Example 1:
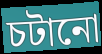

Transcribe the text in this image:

চটানো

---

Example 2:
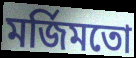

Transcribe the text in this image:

মর্জিমতো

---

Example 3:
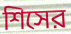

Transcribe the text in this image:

শিসের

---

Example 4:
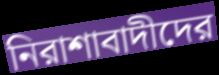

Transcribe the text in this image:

নিরাশাবাদীদের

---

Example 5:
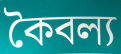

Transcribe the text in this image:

কৈবল্য